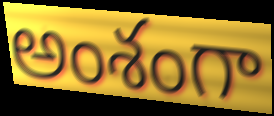
అంశంగా